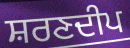
ਸ਼ਰਣਦੀਪ